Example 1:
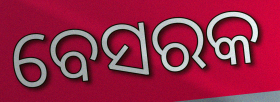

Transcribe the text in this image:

ବେସରକ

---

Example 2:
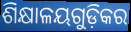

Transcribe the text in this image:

ଶିକ୍ଷାଳୟଗୁଡ଼ିକର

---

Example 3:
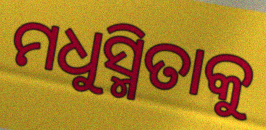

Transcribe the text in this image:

ମଧୁସ୍ମିତାକୁ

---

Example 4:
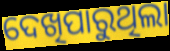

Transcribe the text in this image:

ଦେଖିପାରୁଥିଲା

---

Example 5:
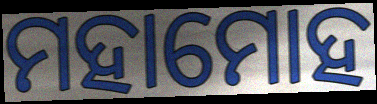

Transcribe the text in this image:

ମହାମୋହ